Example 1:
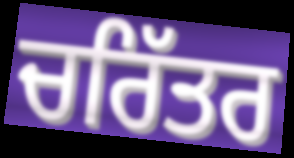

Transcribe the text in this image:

ਚਰਿੱਤਰ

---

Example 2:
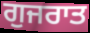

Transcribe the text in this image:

ਗੁਜਰਾਤ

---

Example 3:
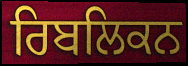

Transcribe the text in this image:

ਰਿਬਲਿਕਨ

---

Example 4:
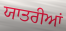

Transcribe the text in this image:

ਯਾਤਰੀਆਂ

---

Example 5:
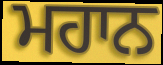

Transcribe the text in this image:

ਮਹਾਨ